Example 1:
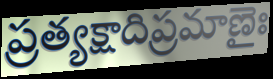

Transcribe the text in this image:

ప్రత్యక్షాదిప్రమాణైః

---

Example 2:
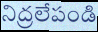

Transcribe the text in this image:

నిద్రలేపండి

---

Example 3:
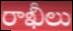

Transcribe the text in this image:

రాఖీలు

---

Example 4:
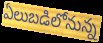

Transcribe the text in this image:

ఏలుబడిలోనున్న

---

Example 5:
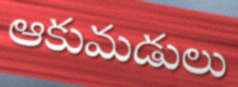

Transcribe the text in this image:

ఆకుమడులు